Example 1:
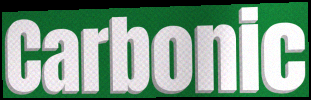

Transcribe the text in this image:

Carbonic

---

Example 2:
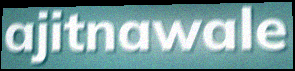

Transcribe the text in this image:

ajitnawale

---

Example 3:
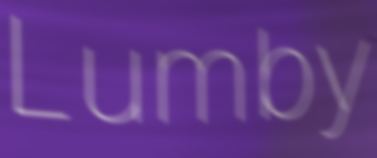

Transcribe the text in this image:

Lumby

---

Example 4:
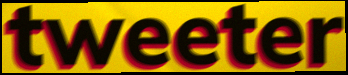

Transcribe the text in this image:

tweeter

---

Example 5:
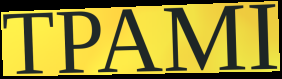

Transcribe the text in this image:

TPAMI